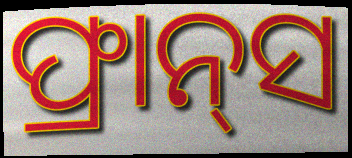
ଫ୍ରାନ୍‍ସ